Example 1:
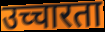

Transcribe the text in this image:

उच्चारता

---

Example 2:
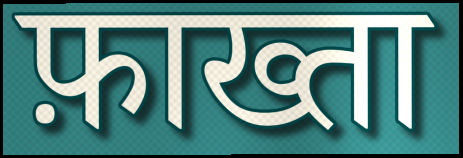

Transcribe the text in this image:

फ़ाख्ता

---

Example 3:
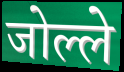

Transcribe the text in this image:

जोल्ले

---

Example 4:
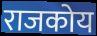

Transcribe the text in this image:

राजकोय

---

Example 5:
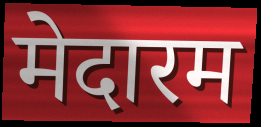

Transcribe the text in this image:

मेदारम